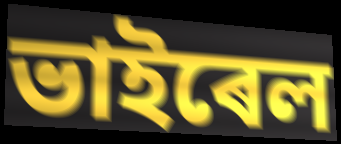
ভাইৰেল